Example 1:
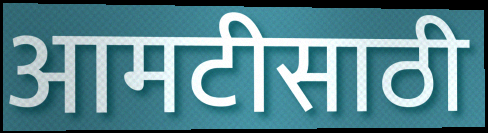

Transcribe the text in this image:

आमटीसाठी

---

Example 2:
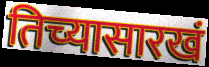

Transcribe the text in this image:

तिच्यासारखं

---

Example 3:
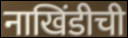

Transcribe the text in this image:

नाखिंडीची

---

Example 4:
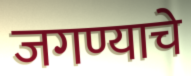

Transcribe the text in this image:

जगण्याचे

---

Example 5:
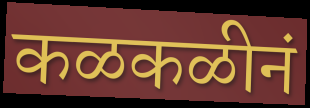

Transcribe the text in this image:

कळकळीनं